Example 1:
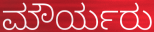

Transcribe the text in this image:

ಮೌರ್ಯರು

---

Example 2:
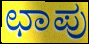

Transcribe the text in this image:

ಛಾಪು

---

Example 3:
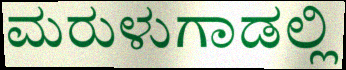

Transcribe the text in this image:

ಮರುಳುಗಾಡಲ್ಲಿ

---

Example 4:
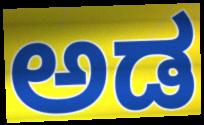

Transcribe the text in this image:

ಅಡ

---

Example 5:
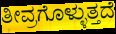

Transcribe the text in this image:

ತೀವ್ರಗೊಳ್ಳುತ್ತದೆ